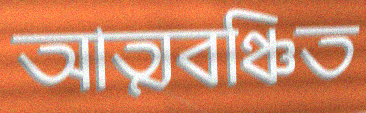
আত্মবঞ্চিত